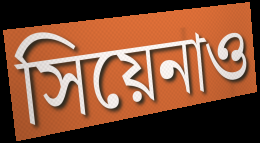
সিয়েনাও